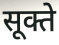
सूक्ते